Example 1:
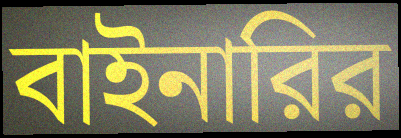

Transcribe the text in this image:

বাইনারির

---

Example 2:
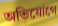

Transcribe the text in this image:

অভিযোগে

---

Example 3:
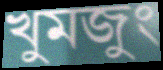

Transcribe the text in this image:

খুমজুং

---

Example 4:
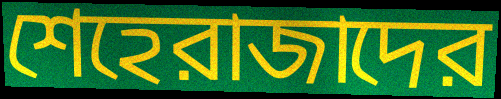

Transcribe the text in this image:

শেহেরাজাদের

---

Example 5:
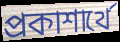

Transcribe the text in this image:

প্রকাশার্থে